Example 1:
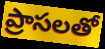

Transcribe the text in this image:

ప్రాసలతో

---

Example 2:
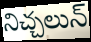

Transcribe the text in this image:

నిచ్చలున్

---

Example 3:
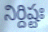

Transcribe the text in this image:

నిర్దిష్టః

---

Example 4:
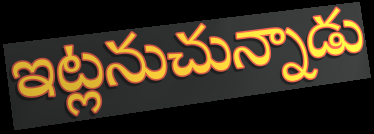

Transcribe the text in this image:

ఇట్లనుచున్నాడు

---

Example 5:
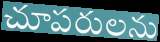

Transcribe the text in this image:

చూపరులను